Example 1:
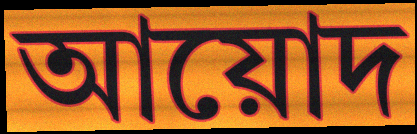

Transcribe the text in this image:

আয়োদ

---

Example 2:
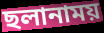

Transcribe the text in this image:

ছলানাময়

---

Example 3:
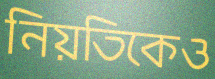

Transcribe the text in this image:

নিয়তিকেও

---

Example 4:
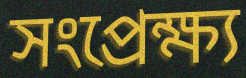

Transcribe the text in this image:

সংপ্রেক্ষ্য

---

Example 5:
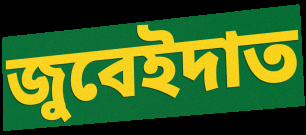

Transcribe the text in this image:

জুবেইদাত